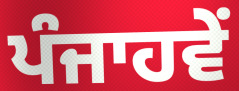
ਪੰਜਾਹਵੇਂ